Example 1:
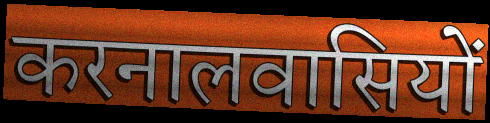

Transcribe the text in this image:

करनालवासियों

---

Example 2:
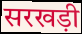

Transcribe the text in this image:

सरखड़ी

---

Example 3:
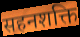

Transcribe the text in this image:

सहनशक्ति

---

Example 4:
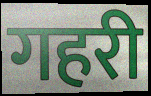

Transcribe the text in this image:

गहरी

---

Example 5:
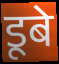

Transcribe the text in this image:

डूबे